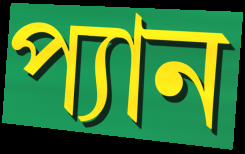
প্যান